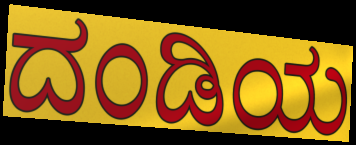
ದಂಡಿಯ